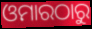
ଓମାରଠାରୁ